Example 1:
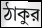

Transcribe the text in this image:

ঠাকুর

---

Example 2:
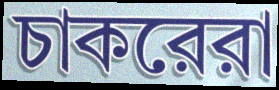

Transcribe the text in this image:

চাকরেরা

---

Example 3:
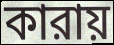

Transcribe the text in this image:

কারায়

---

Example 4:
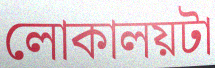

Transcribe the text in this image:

লোকালয়টা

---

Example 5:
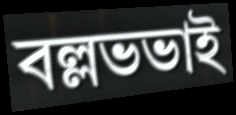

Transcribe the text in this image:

বল্লভভাই